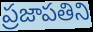
ప్రజాపతిని